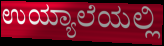
ಉಯ್ಯಾಲೆಯಲ್ಲಿ